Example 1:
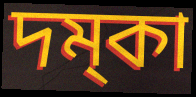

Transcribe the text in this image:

দম্‌কা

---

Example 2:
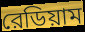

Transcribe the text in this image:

রেডিয়াম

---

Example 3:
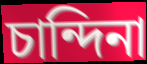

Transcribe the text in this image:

চান্দিনা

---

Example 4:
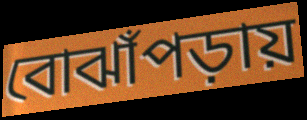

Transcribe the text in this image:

বোঝাঁপড়ায়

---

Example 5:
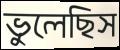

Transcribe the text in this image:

ভুলেছিস